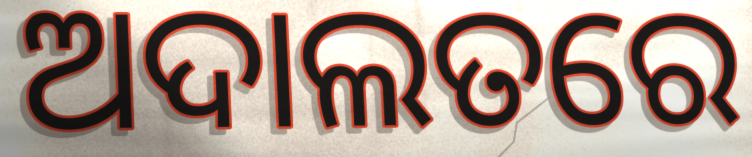
ଅଦାଲତରେ